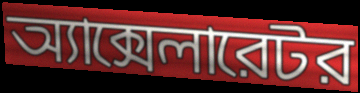
অ্যাক্সেলারেটর